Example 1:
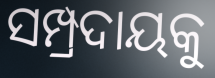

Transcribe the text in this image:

ସମ୍ପ୍ରଦାୟକୁ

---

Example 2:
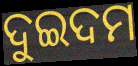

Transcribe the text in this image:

ଦୁଇଦମ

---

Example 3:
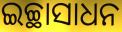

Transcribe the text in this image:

ଇଚ୍ଛାସାଧନ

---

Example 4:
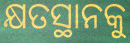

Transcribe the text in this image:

କ୍ଷତସ୍ଥାନକୁ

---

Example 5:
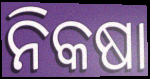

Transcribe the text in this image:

ନିକଷା